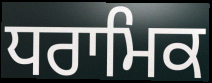
ਧਰਾਮਿਕ